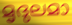
മൃദുലമാ